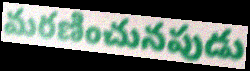
మరణించునపుడు